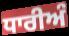
ਧਾਰੀਅੰ